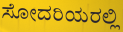
ಸೋದರಿಯರಲ್ಲಿ